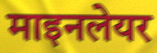
माइनलेयर